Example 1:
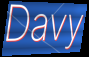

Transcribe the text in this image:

Davy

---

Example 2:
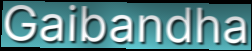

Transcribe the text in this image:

Gaibandha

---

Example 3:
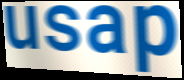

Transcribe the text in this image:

usap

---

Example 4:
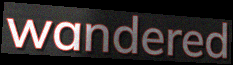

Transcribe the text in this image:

wandered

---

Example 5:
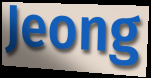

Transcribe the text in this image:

Jeong